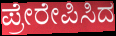
ಪ್ರೇರೇಪಿಸಿದ